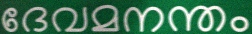
ദേവമനന്തം